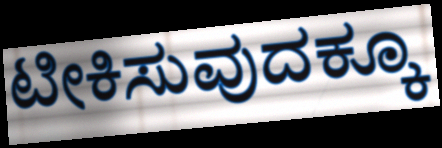
ಟೀಕಿಸುವುದಕ್ಕೂ